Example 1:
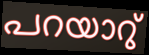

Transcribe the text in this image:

പറയാറു്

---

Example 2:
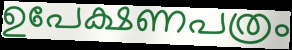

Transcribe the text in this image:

ഉപേക്ഷണപത്രം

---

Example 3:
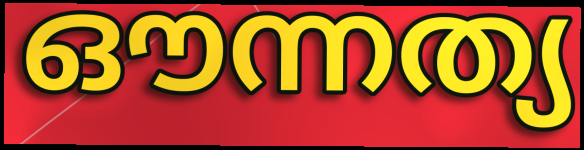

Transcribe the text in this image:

ഔന്നത്യ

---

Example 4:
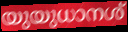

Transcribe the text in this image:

യുയുധാനശ്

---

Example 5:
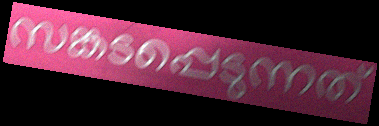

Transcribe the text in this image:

സങ്കടപ്പെടുന്നത്